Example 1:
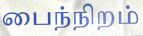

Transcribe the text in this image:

பைந்நிறம்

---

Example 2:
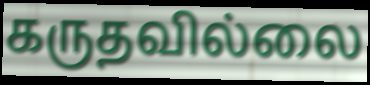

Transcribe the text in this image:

கருதவில்லை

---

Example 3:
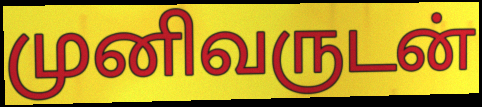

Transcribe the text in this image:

முனிவருடன்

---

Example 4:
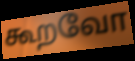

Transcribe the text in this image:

கூறவோ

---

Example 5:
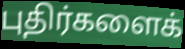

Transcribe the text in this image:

புதிர்களைக்